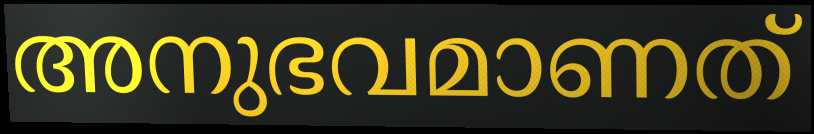
അനുഭവമാണത്